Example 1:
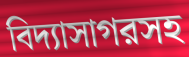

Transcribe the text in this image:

বিদ্যাসাগরসহ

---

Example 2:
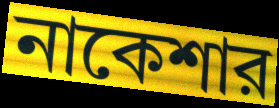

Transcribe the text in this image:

নাকেশার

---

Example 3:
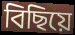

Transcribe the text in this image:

বিছিয়ে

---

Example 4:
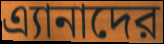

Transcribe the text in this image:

এ্যানাদের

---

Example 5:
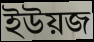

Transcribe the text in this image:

ইউয়জ